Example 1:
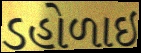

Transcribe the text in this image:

ડહોળાઇ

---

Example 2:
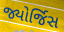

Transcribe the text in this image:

જ્યોર્જિસ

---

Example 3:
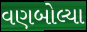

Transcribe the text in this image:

વણબોલ્યા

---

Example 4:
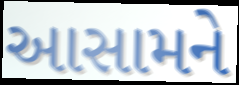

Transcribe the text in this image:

આસામને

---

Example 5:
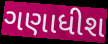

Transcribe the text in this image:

ગણાધીશ